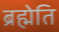
ब्रह्मेति